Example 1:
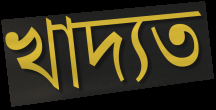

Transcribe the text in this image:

খাদ্যত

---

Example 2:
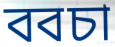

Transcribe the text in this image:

ববচা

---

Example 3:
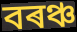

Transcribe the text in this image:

বৰঞ্চ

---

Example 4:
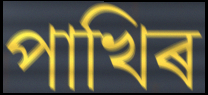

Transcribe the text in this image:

পাখিৰ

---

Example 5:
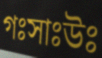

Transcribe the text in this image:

গঃসাঃউঃ